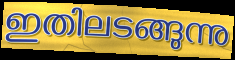
ഇതിലടങ്ങുന്നു